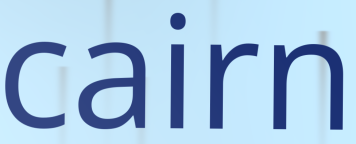
cairn